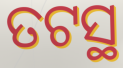
ତଟସ୍ଥ